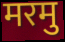
मरमु